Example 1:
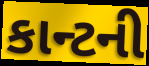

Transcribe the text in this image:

કાન્ટની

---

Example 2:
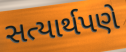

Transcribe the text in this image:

સત્યાર્થપણે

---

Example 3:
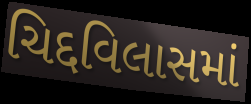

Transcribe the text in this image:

ચિદ્દવિલાસમાં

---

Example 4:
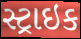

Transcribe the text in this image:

સ્ટ્રાઇક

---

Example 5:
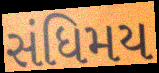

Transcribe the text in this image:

સંધિમય